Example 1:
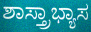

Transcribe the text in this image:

ಶಾಸ್ತ್ರಾಭ್ಯಾಸ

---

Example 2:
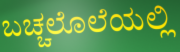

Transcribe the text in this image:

ಬಚ್ಚಲೊಲೆಯಲ್ಲಿ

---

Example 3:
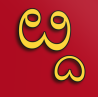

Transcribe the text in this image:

ೞ್ದ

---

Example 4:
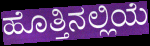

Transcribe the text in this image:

ಹೊತ್ತಿನಲ್ಲಿಯೆ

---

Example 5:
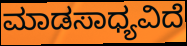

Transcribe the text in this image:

ಮಾಡಸಾಧ್ಯವಿದೆ